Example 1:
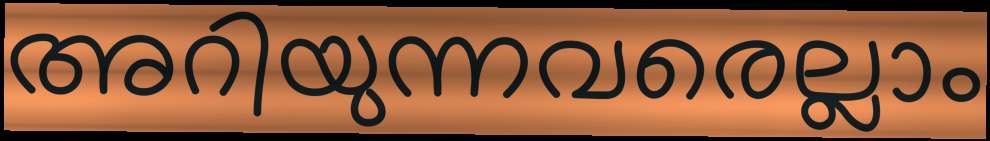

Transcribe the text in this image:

അറിയുന്നവരെല്ലാം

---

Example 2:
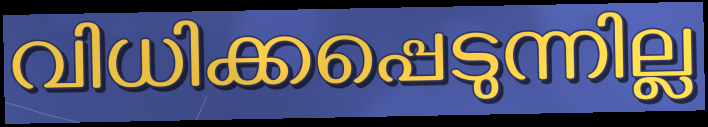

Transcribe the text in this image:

വിധിക്കപ്പെടുന്നില്ല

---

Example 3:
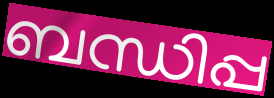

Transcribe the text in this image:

ബന്ധിപ്പ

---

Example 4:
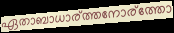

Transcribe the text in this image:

ഏതാബാധാര്ത്തനോര്ത്തോ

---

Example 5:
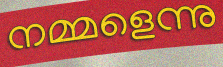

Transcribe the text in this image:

നമ്മളെന്നു